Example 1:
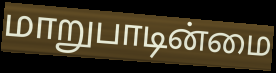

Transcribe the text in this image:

மாறுபாடின்மை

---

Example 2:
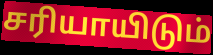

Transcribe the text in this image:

சரியாயிடும்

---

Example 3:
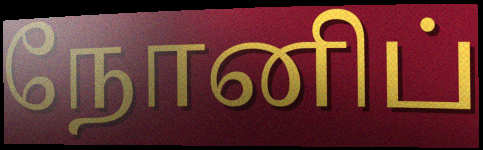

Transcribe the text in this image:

நோனிப்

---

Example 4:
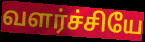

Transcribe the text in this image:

வளர்ச்சியே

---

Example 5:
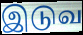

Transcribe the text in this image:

இடுவ